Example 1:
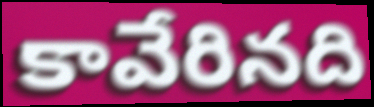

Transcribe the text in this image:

కావేరినది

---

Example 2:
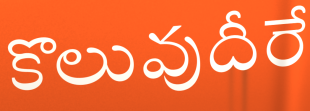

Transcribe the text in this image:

కొలువుదీరే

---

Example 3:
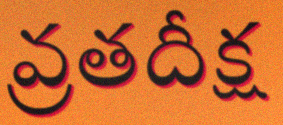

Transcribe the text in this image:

వ్రతదీక్ష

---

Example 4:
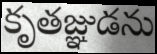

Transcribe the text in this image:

కృతజ్ఞుడను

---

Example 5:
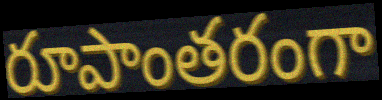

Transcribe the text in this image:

రూపాంతరంగా